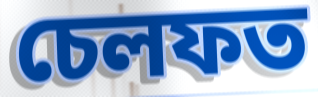
চেলফত